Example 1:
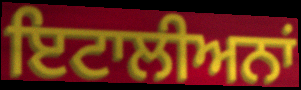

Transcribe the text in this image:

ਇਟਾਲੀਅਨਾਂ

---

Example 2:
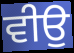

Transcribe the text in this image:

ਵੀਉ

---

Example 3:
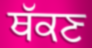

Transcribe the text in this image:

ਥੱਕਣ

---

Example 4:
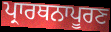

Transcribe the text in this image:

ਪ੍ਰਾਰਥਨਾਪੂਰਣ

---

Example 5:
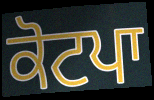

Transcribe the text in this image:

ਕੋਟਪਾ